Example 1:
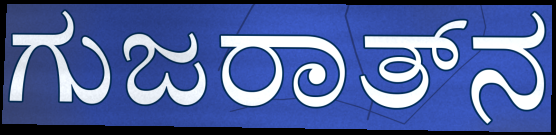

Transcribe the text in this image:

ಗುಜರಾತ್‍ನ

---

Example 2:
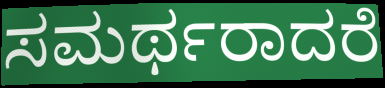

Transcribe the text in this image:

ಸಮರ್ಥರಾದರೆ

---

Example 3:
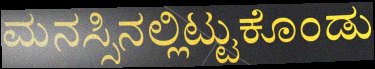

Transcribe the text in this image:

ಮನಸ್ಸಿನಲ್ಲಿಟ್ಟುಕೊಂಡು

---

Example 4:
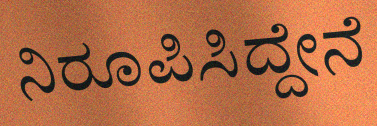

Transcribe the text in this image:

ನಿರೂಪಿಸಿದ್ದೇನೆ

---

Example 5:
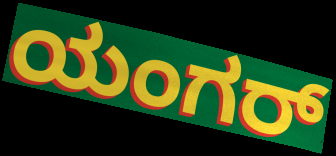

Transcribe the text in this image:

ಯಂಗರ್